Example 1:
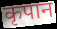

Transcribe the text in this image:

कृपान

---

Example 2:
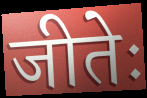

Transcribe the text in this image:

जीतेः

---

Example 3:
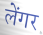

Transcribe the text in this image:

लेंगर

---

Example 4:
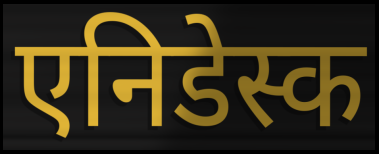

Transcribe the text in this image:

एनिडेस्क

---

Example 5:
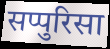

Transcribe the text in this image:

सप्पुरिसा